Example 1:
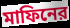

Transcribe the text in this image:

মাফিনের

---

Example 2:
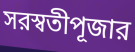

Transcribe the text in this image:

সরস্বতীপূজার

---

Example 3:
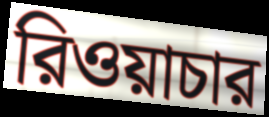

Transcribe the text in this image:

রিওয়াচার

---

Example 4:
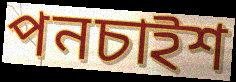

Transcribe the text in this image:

পনচাইশ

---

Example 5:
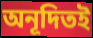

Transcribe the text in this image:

অনূদিতই